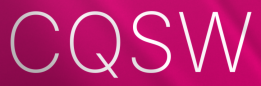
CQSW